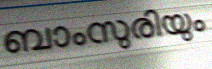
ബാംസുരിയും